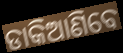
ଡାକିଆଣିବେ